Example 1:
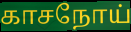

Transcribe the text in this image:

காசநோய்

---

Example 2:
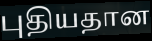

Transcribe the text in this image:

புதியதான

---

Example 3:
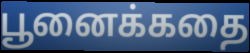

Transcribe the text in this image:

பூனைக்கதை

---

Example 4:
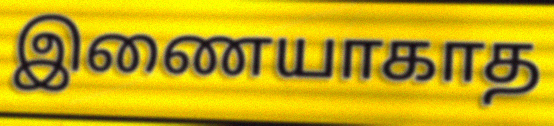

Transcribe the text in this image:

இணையாகாத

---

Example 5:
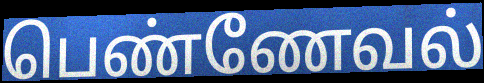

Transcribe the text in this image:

பெண்ணேவல்